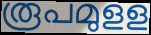
രൂപമുളള